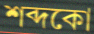
শব্দকো